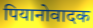
पियानोवादक